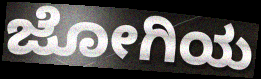
ಜೋಗಿಯ